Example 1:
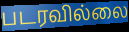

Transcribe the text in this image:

படரவில்லை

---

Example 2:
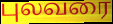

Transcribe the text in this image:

புலவரை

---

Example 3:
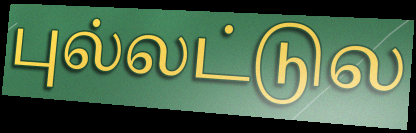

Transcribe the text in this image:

புல்லட்டுல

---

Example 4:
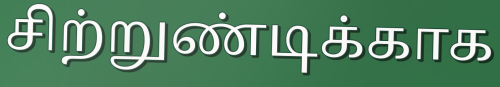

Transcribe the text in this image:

சிற்றுண்டிக்காக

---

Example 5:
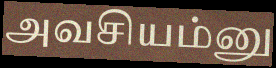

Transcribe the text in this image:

அவசியம்னு